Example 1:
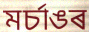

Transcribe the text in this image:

মৰ্চাঙৰ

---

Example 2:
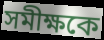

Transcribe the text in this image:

সমীক্ষকে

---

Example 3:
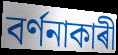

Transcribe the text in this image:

বৰ্ণনাকাৰী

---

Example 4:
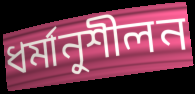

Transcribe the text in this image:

ধৰ্মানুশীলন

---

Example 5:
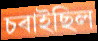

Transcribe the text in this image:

চৰাইছিল